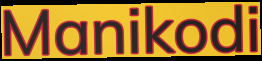
Manikodi